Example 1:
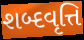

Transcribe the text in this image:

શબ્દવૃત્તિ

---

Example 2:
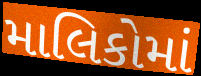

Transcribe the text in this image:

માલિકોમાં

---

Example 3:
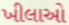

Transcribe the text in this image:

ખીલાઓ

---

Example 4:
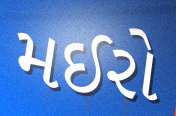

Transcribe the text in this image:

મઈરો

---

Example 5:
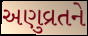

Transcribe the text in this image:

અણુવ્રતને